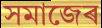
সমাজেৰ